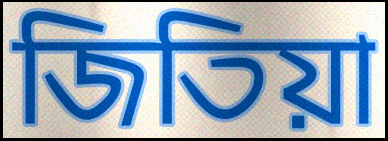
জিতিয়া